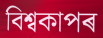
বিশ্বকাপৰ